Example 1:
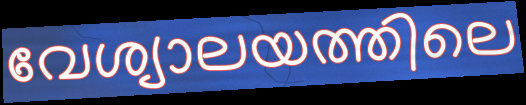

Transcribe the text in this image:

വേശ്യാലയത്തിലെ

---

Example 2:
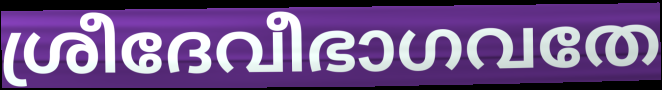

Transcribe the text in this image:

ശ്രീദേവീഭാഗവതേ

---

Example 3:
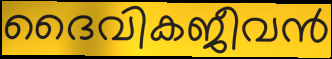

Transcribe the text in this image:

ദൈവികജീവൻ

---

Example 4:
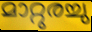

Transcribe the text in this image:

മാറ്റുരച്ചു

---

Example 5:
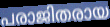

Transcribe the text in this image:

പരാജിതരായ